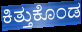
ಕಿತ್ತುಕೊಂಡ